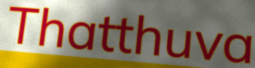
Thatthuva